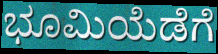
ಭೂಮಿಯೆಡೆಗೆ